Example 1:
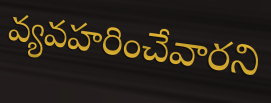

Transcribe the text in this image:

వ్యవహరించేవారని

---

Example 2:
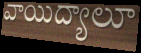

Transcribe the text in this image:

వాయిద్యాలూ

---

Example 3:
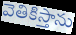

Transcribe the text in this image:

వెతికిస్తాను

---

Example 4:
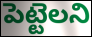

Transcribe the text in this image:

పెట్టెలని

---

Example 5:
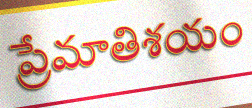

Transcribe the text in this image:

ప్రేమాతిశయం